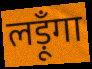
लड़ूँगा